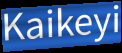
Kaikeyi